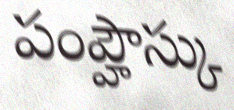
పంప్హౌస్కు